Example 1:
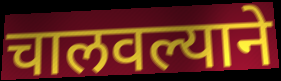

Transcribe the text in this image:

चालवल्याने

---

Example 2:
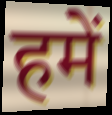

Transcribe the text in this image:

हमें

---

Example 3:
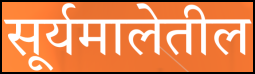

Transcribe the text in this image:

सूर्यमालेतील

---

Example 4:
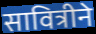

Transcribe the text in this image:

सावित्रीने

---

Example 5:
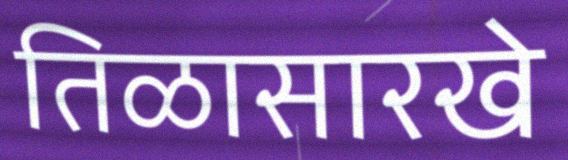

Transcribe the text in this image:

तिळासारखे